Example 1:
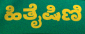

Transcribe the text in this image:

ಹಿತೈಷಿಣಿ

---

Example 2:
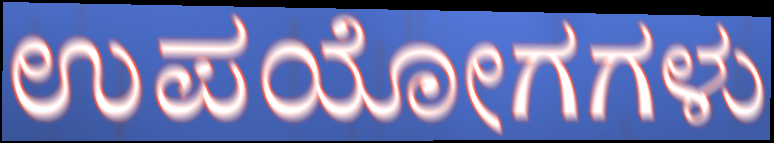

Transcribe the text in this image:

ಉಪಯೋಗಗಳು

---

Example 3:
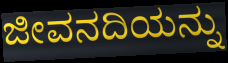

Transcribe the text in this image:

ಜೀವನದಿಯನ್ನು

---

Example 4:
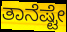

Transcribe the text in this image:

ತಾನೆಷ್ಟೇ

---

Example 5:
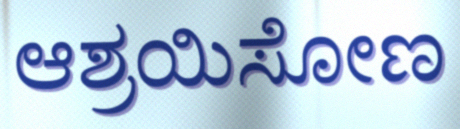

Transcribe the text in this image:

ಆಶ್ರಯಿಸೋಣ